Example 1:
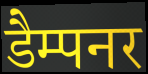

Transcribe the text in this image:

डैम्पनर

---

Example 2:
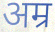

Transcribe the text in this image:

अम्र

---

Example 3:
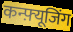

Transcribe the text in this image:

कन्फ़्यूजिंग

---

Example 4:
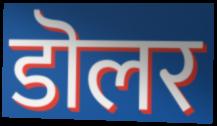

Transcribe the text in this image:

डॊलर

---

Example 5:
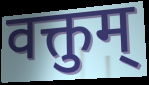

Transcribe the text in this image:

वक्तुम्